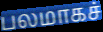
பலமாகச்